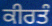
ਕੀਰਤੰ